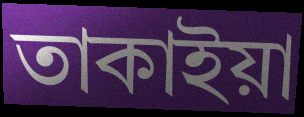
তাকাইয়া